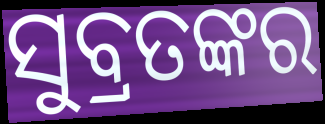
ସୁବ୍ରତଙ୍କର